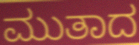
ಮುತಾದ